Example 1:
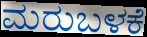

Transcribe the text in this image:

ಮರುಬಳಕೆ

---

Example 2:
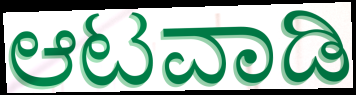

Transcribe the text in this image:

ಆಟವಾಡಿ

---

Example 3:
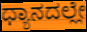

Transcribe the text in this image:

ಧ್ಯಾನದಲ್ಲೇ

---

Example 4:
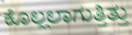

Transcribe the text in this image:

ಕೊಲ್ಲಲಾಗುತ್ತಿತ್ತು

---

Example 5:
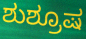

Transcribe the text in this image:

ಶುಶ್ರೂಷ